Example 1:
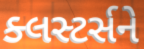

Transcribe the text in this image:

ક્લસ્ટર્સને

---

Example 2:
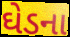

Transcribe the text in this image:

ઘેડના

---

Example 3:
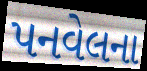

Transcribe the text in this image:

પનવેલના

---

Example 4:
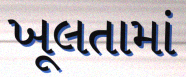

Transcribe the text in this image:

ખૂલતામાં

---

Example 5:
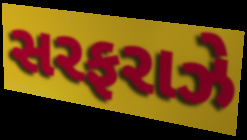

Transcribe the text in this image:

સરફરાઝે